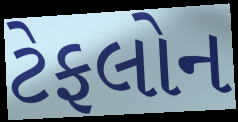
ટેફલોન